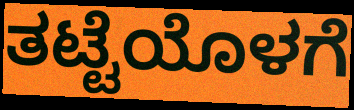
ತಟ್ಟೆಯೊಳಗೆ